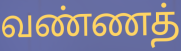
வண்ணத்